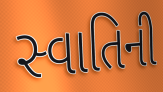
સ્વાતિની